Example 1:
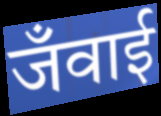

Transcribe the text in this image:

जँवाई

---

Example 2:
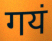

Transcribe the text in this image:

गयं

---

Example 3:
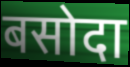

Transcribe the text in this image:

बसोदा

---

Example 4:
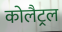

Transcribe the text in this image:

कोलैट्रल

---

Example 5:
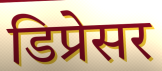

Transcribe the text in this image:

डिप्रेसर